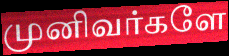
முனிவர்களே